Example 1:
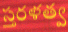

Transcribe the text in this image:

స్తరళత్వ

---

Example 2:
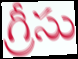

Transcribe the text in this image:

గ్రీసు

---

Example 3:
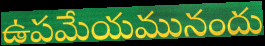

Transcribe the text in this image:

ఉపమేయమునందు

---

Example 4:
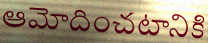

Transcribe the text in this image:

ఆమోదించటానికి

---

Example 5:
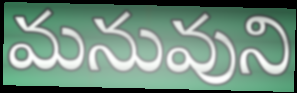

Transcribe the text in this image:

మనువుని